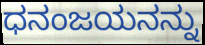
ಧನಂಜಯನನ್ನು